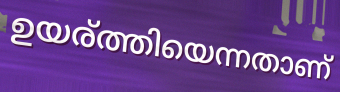
ഉയര്ത്തിയെന്നതാണ്